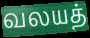
வலயத்